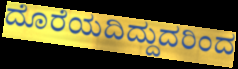
ದೊರೆಯದಿದ್ದುದರಿಂದ